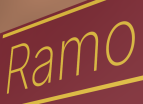
Ramo